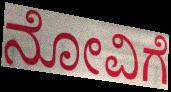
ನೋವಿಗೆ